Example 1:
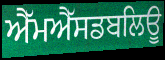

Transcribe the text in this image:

ਐੱਮਐੱਸਡਬਲਿਊ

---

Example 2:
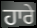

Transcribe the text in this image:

ਹਾਰੇ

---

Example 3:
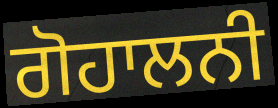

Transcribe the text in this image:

ਗੋਹਾਲਨੀ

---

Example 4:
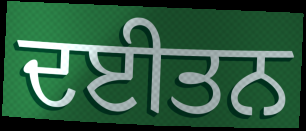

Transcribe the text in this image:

ਦਈਤਨ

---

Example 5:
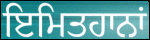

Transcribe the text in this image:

ਇਮਿਤਹਾਨਾਂ